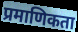
प्रमाणिकता